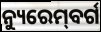
ନ୍ୟୁରେମ୍‌ବର୍ଗ